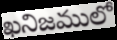
ఖనిజములో